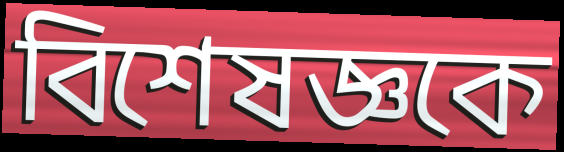
বিশেষজ্ঞকে